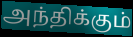
அந்திக்கும்